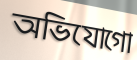
অভিযোগো